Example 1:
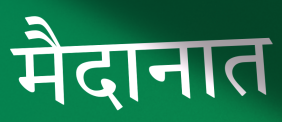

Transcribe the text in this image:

मैदानात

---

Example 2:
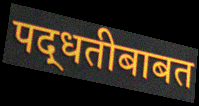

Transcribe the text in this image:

पद्धतीबाबत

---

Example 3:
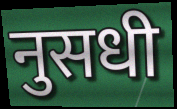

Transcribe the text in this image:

नुसधी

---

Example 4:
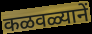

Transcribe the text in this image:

कळवळ्यानें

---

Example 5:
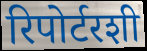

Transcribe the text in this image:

रिपोर्टरशी